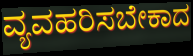
ವ್ಯವಹರಿಸಬೇಕಾದ